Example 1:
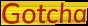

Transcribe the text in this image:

Gotcha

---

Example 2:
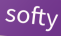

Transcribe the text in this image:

softy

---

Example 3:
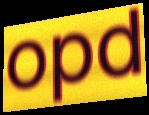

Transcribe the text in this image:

opd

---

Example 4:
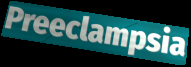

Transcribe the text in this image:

Preeclampsia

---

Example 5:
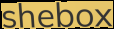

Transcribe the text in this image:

shebox